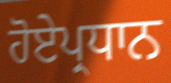
ਹੋਏਪ੍ਰਧਾਨ